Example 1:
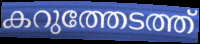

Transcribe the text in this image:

കറുത്തേടത്ത്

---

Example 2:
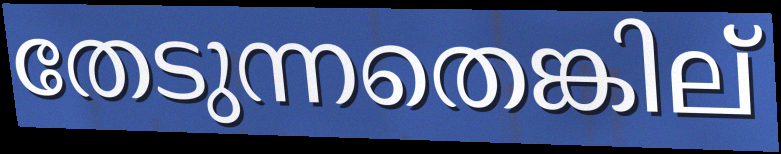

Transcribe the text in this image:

തേടുന്നതെങ്കില്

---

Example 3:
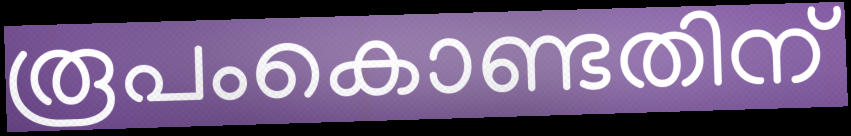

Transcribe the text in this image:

രൂപംകൊണ്ടതിന്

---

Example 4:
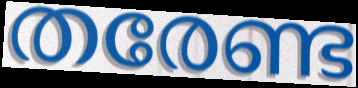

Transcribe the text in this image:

തരേണ്ട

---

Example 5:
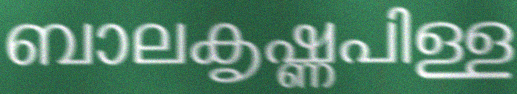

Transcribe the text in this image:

ബാലകൃഷ്ണപിള്ള